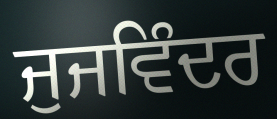
ਜੁਜਵਿੰਦਰ